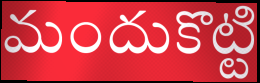
మందుకొట్టి